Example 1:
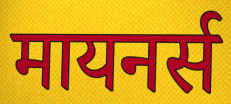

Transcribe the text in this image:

मायनर्स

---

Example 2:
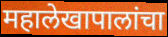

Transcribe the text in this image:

महालेखापालांचा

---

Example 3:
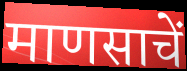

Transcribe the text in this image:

माणसाचें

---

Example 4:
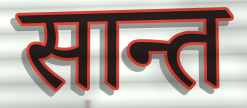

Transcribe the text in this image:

सान्त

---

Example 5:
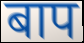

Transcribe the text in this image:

बाप